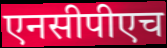
एनसीपीएच